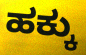
ಹಕ್ಕು